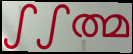
ഽഽത്മ